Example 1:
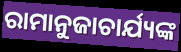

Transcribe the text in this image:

ରାମାନୁଜାଚାର୍ଯ୍ୟଙ୍କ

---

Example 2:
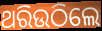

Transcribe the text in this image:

ଥରିଉଠିଲେ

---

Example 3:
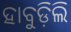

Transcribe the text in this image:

ହାବୁଡ଼ିଲି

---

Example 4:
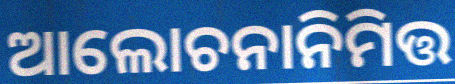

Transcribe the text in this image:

ଆଲୋଚନାନିମିତ୍ତ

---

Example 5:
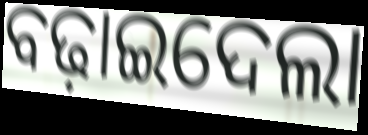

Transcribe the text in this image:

ବଢ଼ାଇଦେଲା